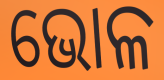
ଭୋଳ